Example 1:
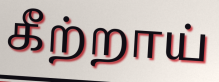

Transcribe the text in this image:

கீற்றாய்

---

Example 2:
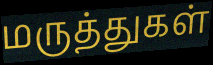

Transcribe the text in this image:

மருத்துகள்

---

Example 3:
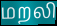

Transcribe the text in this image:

மறலி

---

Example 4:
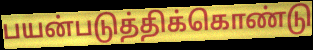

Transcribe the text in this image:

பயன்படுத்திக்கொண்டு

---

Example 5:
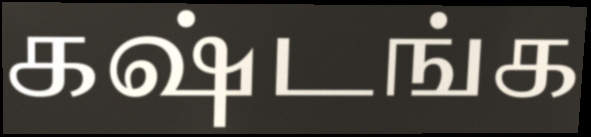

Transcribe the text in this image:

கஷ்டங்க